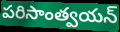
పరిసాంత్వయన్